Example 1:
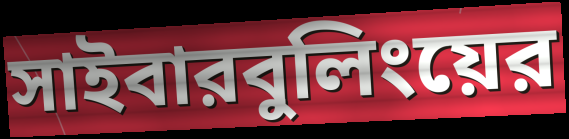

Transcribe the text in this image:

সাইবারবুলিংয়ের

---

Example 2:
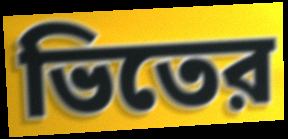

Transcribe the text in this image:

ভিতের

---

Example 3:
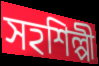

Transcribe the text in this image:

সহশিল্পী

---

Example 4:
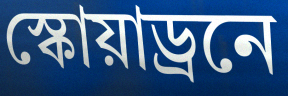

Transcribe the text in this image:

স্কোয়াড্রনে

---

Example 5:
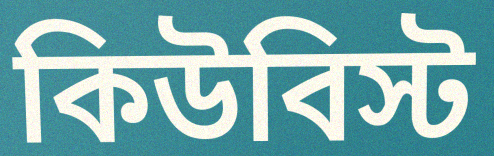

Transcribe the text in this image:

কিউবিস্ট